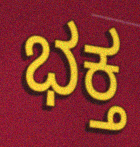
ಭಕ್ತ